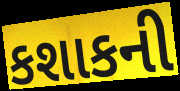
કશાકની